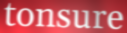
tonsure